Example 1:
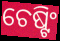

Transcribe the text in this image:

ଚେଷ୍ଟିଂ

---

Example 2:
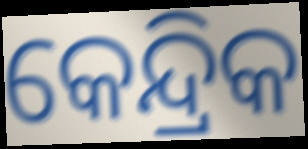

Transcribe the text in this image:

କେନ୍ଦ୍ରିକ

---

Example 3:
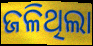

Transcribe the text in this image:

ଜଳିଥିଲା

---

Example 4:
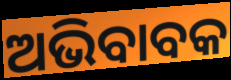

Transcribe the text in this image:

ଅଭିବାବକ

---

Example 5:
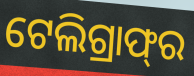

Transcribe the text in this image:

ଟେଲିଗ୍ରାଫ୍‌ର